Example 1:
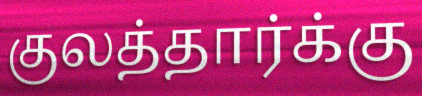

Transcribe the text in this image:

குலத்தார்க்கு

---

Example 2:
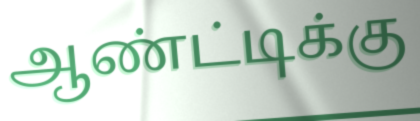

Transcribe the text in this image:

ஆண்ட்டிக்கு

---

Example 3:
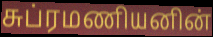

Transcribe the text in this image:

சுப்ரமணியனின்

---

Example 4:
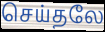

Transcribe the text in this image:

செய்தலே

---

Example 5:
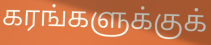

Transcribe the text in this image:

கரங்களுக்குக்